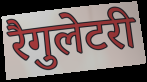
रैगुलेटरी